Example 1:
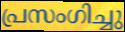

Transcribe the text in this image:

പ്രസംഗിച്ചു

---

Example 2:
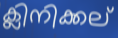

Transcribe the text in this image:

ക്ലിനിക്കല്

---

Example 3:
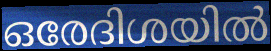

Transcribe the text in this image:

ഒരേദിശയിൽ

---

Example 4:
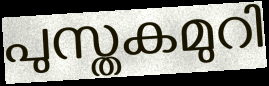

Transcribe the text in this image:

പുസ്തകമുറി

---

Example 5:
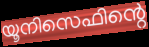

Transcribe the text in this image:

യൂനിസെഫിന്റെ